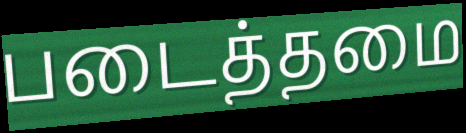
படைத்தமை